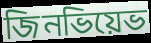
জিনভিয়েভ